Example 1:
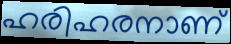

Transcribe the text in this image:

ഹരിഹരനാണ്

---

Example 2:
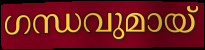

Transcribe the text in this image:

ഗന്ധവുമായ്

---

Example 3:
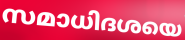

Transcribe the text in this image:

സമാധിദശയെ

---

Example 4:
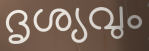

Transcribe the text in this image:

ദൃശ്യവും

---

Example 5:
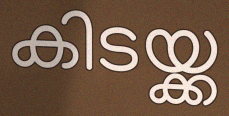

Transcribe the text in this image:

കിടയ്ക്ക